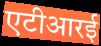
एटीआरई